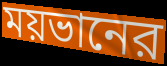
ময়ভানের